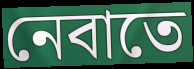
নেবাতে